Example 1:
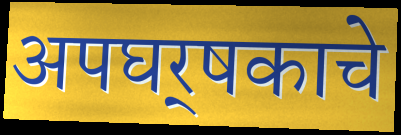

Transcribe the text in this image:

अपघर्षकाचे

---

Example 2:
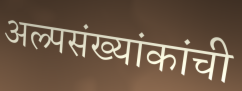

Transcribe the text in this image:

अल्पसंख्यांकांची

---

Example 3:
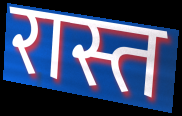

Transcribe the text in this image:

रास्त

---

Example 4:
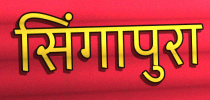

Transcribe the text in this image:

सिंगापुरा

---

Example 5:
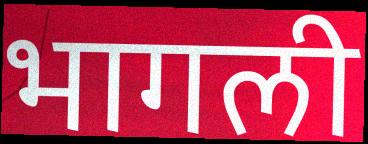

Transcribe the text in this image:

भागली